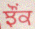
ਝੌਂਕ